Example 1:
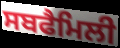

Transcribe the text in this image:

ਸਬਫੈਮਿਲੀ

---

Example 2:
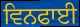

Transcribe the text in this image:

ਵਿਨਫਾਈ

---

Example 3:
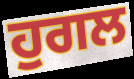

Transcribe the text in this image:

ਹੁਗਲ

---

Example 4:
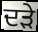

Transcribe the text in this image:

ਦੜੇ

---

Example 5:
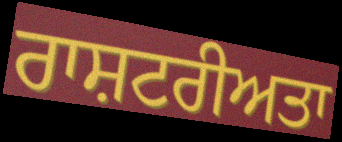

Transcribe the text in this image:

ਰਾਸ਼ਟਰੀਅਤਾ